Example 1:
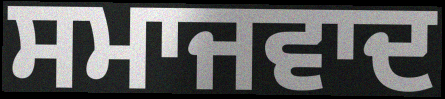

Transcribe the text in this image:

ਸਮਾਜਵਾਦ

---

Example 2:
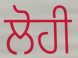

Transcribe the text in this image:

ਲੋਹੀ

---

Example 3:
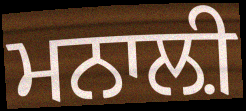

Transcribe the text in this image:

ਮਨਾਲ਼ੀ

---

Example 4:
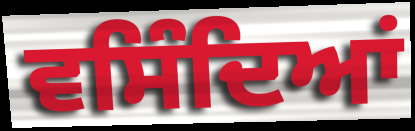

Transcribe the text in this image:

ਵਸਿੰਦਿਆਂ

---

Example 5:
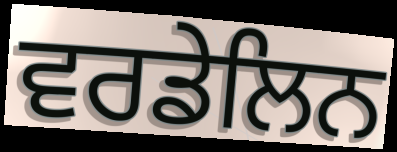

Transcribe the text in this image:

ਵਰਡੇਲਿਨ